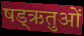
षड्ऋतुओं